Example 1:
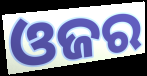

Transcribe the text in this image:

ଓଜର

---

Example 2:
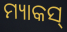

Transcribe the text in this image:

ମ୍ୟାକସ୍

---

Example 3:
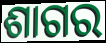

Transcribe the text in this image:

ଶାଗର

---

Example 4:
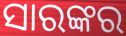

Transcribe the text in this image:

ସାରଙ୍କର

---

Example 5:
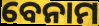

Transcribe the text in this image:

ବେନାମ